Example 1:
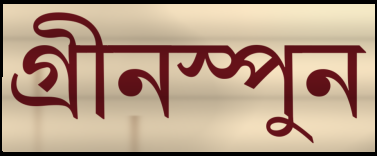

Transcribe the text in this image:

গ্রীনস্পুন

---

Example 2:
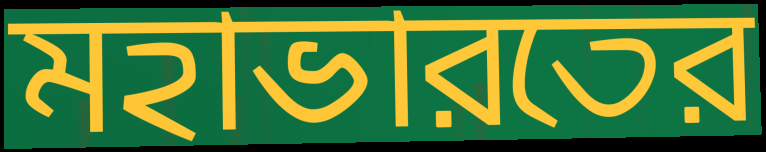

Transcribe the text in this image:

মহাভারতের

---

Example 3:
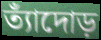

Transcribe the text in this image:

ত্যাঁদোড়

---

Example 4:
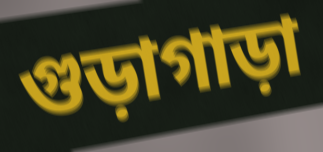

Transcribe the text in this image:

গুড়াগাড়া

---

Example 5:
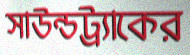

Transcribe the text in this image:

সাউন্ডট্র্যাকের